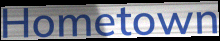
Hometown